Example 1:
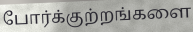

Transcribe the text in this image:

போர்க்குற்றங்களை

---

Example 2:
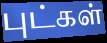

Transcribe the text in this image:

புட்கள்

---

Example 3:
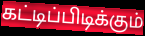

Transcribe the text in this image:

கட்டிப்பிடிக்கும்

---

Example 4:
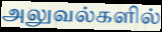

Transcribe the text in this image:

அலுவல்களில்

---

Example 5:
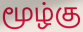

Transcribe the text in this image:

மூழ்கு